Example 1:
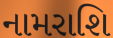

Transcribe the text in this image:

નામરાશિ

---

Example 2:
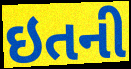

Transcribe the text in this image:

ઇતની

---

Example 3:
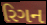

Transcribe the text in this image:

રિગન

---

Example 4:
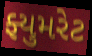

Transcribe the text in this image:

ફ્યુમરેટ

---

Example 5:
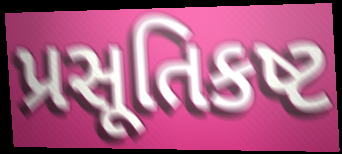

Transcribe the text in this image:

પ્રસૂતિકષ્ટ